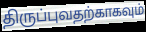
திருப்புவதற்காகவும்